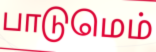
பாடுமெம்